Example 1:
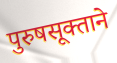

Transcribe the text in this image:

पुरुषसूक्ताने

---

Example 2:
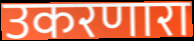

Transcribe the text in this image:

उकरणारा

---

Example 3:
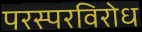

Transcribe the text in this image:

परस्परविरोध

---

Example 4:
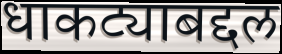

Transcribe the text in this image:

धाकट्याबद्दल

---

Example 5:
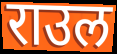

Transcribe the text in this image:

राउल